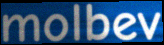
molbev